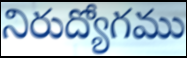
నిరుద్యోగము